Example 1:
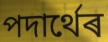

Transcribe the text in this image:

পদাৰ্থেৰ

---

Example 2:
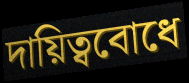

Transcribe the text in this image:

দায়িত্ববোধে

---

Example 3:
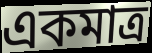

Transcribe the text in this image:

একমাত্ৰ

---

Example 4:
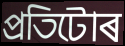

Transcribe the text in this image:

প্ৰতিটোৰ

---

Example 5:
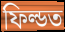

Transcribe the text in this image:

ফিল্ডত